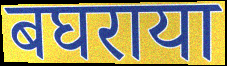
बघराया